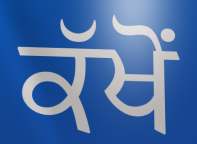
ਕੱਖੋਂ